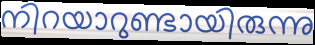
നിറയാറുണ്ടായിരുന്നു